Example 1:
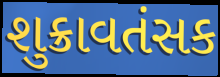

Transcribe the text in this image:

શુક્રાવતંસક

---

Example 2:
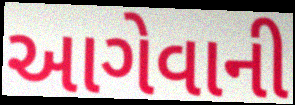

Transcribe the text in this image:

આગેવાની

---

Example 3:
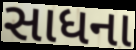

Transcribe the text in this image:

સાધના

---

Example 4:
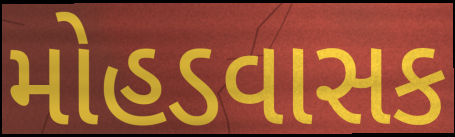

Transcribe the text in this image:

મોહડવાસક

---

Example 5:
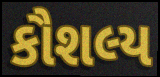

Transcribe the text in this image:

કૌશલ્ય